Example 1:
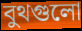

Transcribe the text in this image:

বুথগুলো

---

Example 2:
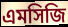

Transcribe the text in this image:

এমসিজি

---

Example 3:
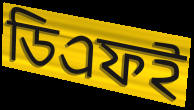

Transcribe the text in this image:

ডিএফই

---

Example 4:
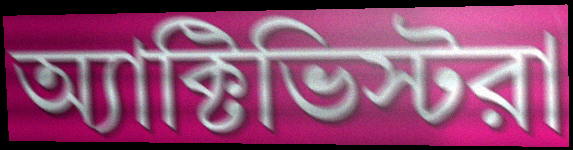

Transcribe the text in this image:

অ্যাক্টিভিস্টরা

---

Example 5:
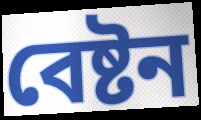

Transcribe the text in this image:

বেষ্টন